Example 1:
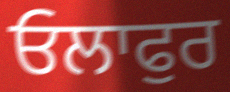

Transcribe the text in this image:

ਓਲਾਫੁਰ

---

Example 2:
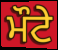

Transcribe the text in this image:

ਮੌਟੇ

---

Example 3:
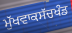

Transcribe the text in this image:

ਮੁੱਖਵਾਕਸੱਚਖੰਡ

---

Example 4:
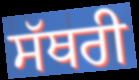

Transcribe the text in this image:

ਸੱਥਰੀ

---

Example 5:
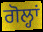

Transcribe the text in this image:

ਗੋਲ੍ਹਾਂ